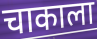
चाकाला